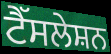
ਟੈੱਸਲੇਸ਼ਨ